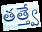
తత్త్వే